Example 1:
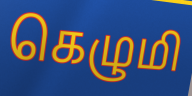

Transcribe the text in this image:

கெழுமி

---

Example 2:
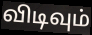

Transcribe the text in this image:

விடிவும்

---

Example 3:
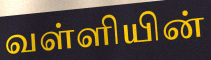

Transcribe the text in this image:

வள்ளியின்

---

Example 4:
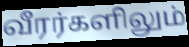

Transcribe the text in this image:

வீரர்களிலும்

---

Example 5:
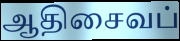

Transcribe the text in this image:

ஆதிசைவப்